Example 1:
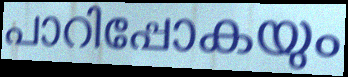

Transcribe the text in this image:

പാറിപ്പോകയും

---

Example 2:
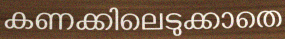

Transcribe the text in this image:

കണക്കിലെടുക്കാതെ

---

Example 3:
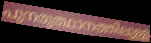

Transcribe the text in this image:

പുനരുത്ഥാനത്തിലുള്ള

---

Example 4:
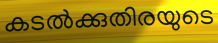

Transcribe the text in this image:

കടൽക്കുതിരയുടെ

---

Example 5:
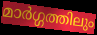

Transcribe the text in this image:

മാർഗ്ഗത്തിലും